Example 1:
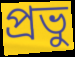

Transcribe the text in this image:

প্রভু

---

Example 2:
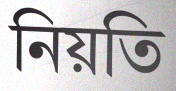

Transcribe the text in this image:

নিয়তি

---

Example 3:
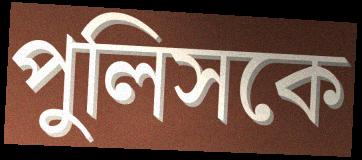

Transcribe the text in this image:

পুলিসকে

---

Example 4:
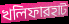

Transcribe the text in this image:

খলিফারহাট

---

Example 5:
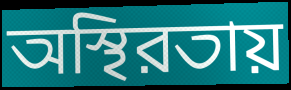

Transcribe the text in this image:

অস্থিরতায়